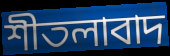
শীতলাবাদ